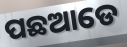
ପଛଆଡେ